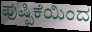
ಪುಷ್ಪಿಕೆಯಿಂದ